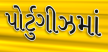
પોર્ટુગીઝમાં